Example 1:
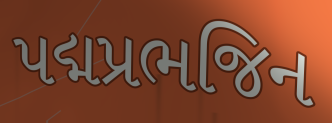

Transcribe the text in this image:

પદ્મપ્રભજિન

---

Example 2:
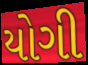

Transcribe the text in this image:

યોગી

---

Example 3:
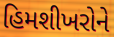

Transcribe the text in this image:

હિમશીખરોને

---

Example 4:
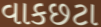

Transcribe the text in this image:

વાકછટા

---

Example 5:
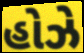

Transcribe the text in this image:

હોઝે